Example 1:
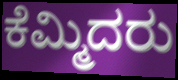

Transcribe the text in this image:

ಕೆಮ್ಮಿದರು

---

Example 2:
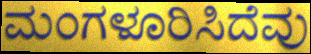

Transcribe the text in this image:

ಮಂಗಳೂರಿಸಿದೆವು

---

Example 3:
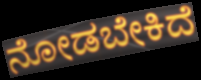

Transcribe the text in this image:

ನೋಡಬೇಕಿದೆ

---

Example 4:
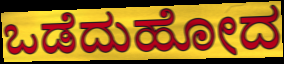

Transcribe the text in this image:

ಒಡೆದುಹೋದ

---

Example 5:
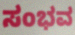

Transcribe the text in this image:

ಸಂಭವ